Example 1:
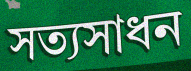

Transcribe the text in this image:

সত্যসাধন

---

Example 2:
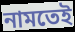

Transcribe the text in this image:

নামতেই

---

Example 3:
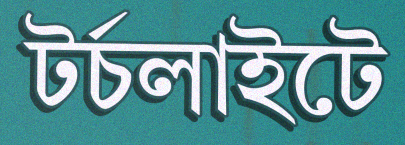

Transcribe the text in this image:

টর্চলাইটে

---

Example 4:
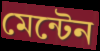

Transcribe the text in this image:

মেন্টেন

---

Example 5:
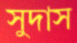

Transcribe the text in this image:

সুদাস